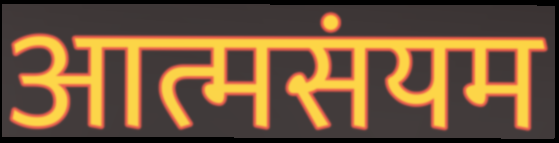
आत्मसंयम